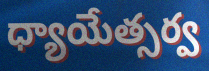
ధ్యాయేత్సర్వ